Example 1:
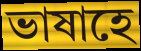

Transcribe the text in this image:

ভাষাহে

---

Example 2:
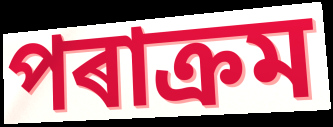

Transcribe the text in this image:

পৰাক্ৰম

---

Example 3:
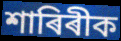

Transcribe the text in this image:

শাৰিৰীক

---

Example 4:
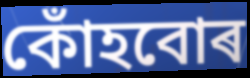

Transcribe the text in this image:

কোঁহবোৰ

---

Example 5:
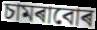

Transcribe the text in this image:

চামৰাবোৰ